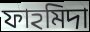
ফাহমিদা